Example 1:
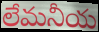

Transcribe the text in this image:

లేమనీయ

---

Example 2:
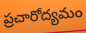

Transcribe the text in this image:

ప్రచారోద్యమం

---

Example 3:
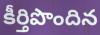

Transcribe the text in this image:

కీర్తిపొందిన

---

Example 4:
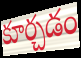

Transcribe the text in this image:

కూర్చడం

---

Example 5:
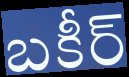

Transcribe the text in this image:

బకీర్